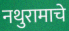
नथुरामाचे